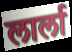
लार्ला